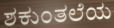
ಶಕುಂತಲೆಯ